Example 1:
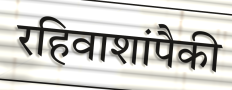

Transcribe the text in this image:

रहिवाशांपैकी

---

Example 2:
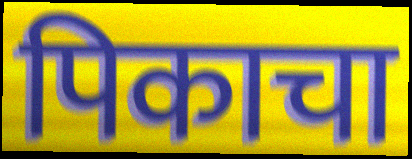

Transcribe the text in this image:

पिकाचा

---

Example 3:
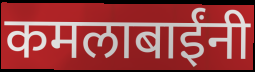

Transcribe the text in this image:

कमलाबाईंनी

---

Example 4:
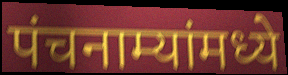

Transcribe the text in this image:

पंचनाम्यांमध्ये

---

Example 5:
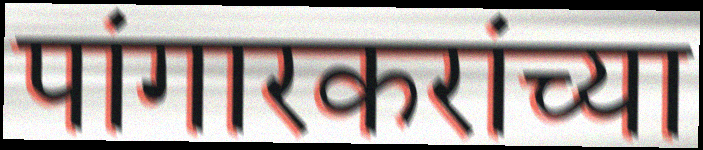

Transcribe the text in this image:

पांगारकरांच्या